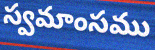
స్వమాంసము